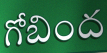
గోబింద